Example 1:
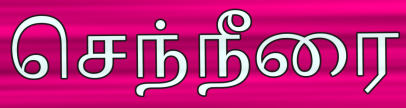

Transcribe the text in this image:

செந்நீரை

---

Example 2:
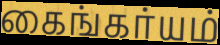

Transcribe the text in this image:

கைங்கர்யம்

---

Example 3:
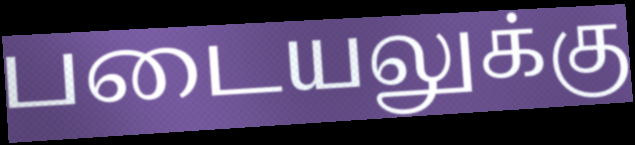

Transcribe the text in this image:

படையலுக்கு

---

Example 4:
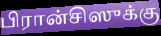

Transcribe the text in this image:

பிரான்சிஸுக்கு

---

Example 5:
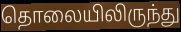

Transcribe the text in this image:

தொலையிலிருந்து